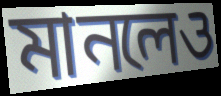
মানলেও